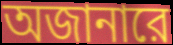
অজানারে